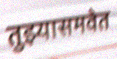
तुझ्यासमवेत